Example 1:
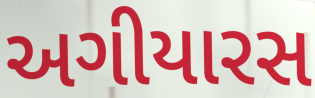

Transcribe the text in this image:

અગીયારસ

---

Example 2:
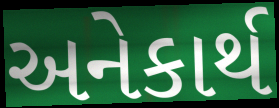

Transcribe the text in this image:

અનેકાર્થ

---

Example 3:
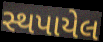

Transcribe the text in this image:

સ્થપાયેલ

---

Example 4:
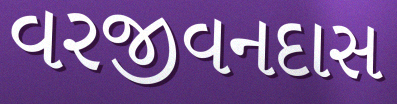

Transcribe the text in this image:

વરજીવનદાસ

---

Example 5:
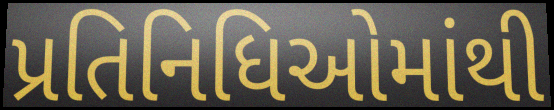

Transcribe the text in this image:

પ્રતિનિધિઓમાંથી